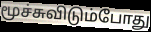
மூச்சுவிடும்போது